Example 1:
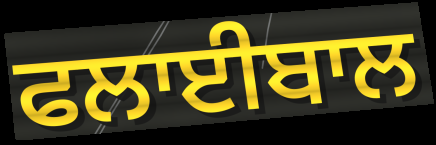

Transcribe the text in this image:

ਫਲਾਈਬਾਲ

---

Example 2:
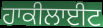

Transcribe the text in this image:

ਹਾਕੀਲਾਈਟ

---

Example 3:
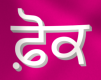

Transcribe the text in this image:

ਫ਼ੋਕ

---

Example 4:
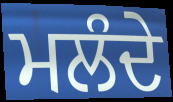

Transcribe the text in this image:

ਮਲੰਦੇ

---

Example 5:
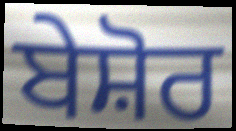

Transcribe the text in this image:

ਬੇਸ਼ੋਰ